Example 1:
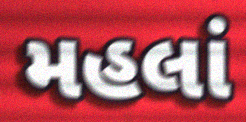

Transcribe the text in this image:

મહલાં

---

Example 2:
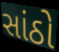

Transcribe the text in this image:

સાંઠો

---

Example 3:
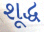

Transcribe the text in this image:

શૂદ્ધ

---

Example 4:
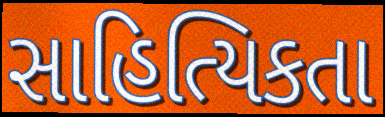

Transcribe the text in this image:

સાહિત્યિકતા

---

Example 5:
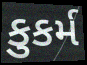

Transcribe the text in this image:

કુકર્મ